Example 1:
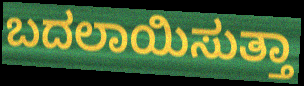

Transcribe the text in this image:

ಬದಲಾಯಿಸುತ್ತಾ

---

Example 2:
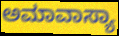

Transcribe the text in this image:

ಅಮಾವಾಸ್ಯಾ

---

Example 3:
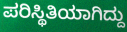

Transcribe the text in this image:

ಪರಿಸ್ಥಿತಿಯಾಗಿದ್ದು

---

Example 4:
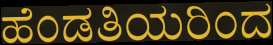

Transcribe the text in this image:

ಹೆಂಡತಿಯರಿಂದ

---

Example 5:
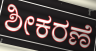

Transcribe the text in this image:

ಶೀಕರಣೆ